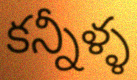
కన్నీళ్ళ